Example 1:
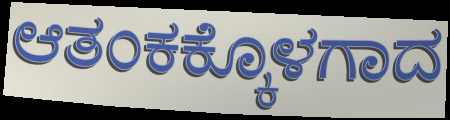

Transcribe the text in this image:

ಆತಂಕಕ್ಕೊಳಗಾದ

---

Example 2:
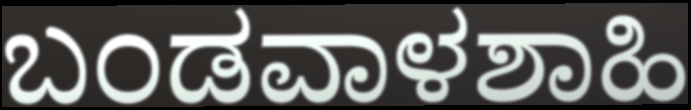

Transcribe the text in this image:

ಬಂಡವಾಳಶಾಹಿ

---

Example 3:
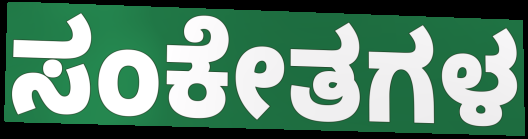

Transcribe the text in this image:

ಸಂಕೇತಗಳ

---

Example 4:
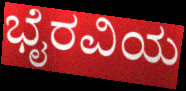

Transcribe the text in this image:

ಭೈರವಿಯ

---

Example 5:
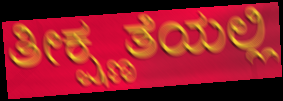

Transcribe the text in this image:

ತೀಕ್ಷ್ಣತೆಯಲ್ಲಿ